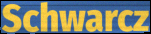
Schwarcz